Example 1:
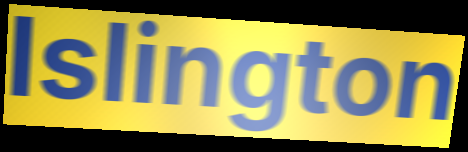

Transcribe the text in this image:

Islington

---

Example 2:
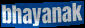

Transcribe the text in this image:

bhayanak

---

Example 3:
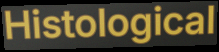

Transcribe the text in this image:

Histological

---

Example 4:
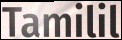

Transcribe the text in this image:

Tamilil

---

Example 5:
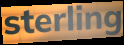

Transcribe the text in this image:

sterling